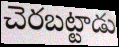
చెరబట్టాడు